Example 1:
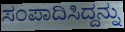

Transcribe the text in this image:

ಸಂಪಾದಿಸಿದ್ದನ್ನು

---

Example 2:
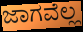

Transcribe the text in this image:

ಜಾಗವೆಲ್ಲ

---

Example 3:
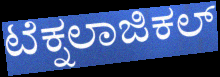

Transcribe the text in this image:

ಟೆಕ್ನಲಾಜಿಕಲ್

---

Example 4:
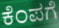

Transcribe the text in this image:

ಕೆಂಪಗೆ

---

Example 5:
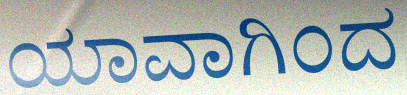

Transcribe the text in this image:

ಯಾವಾಗಿಂದ